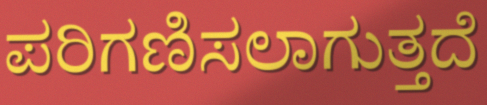
ಪರಿಗಣಿಸಲಾಗುತ್ತದೆ